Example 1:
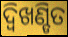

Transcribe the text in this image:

ଦ୍ଵିଖଣ୍ଡିତ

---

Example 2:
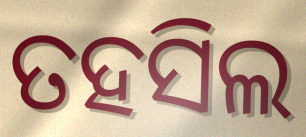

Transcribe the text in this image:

ତହସିଲ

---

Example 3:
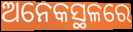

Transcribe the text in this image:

ଅନେକସ୍ଥଳରେ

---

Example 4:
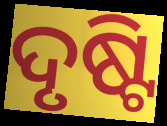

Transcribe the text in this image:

ଦୃଷ୍ଟି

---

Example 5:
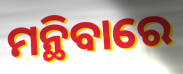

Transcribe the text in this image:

ମନ୍ଥିବାରେ